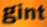
gint